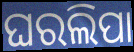
ଘରଲିପା